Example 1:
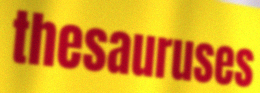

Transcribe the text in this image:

thesauruses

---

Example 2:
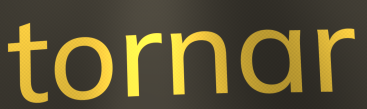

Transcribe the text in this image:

tornar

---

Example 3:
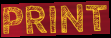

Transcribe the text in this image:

PRINT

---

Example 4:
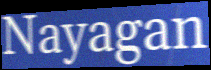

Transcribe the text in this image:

Nayagan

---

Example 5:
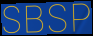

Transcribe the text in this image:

SBSP